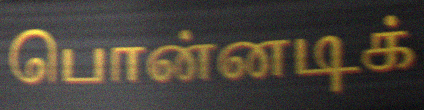
பொன்னடிக்